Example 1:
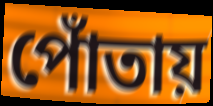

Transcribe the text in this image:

পোঁতায়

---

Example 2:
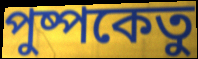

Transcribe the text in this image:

পুষ্পকেতু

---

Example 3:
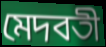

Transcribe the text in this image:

মেদবতী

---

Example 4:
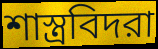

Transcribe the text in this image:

শাস্ত্রবিদরা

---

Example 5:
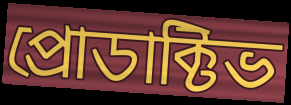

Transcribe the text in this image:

প্রোডাক্টিভ